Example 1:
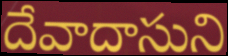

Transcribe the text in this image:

దేవాదాసుని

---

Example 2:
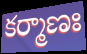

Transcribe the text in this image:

కర్మాణః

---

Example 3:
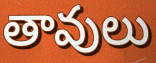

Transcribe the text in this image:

తావులు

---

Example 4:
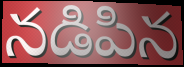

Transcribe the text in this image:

నడిపిన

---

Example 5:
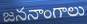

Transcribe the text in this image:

జననాంగాలు